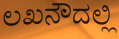
ಲಖನೌದಲ್ಲಿ